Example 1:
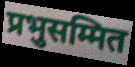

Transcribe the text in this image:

प्रभुसम्मित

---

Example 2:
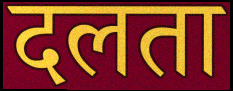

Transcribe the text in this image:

दलता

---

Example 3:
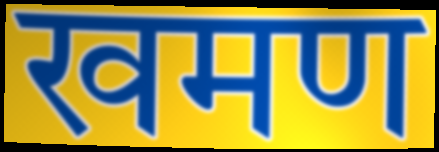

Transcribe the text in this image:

खमण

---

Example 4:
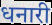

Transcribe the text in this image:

धनारी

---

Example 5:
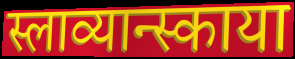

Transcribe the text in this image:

स्लाव्यान्स्काया